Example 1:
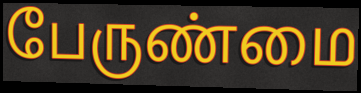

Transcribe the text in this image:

பேருண்மை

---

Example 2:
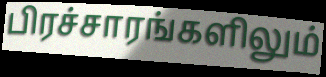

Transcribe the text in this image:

பிரச்சாரங்களிலும்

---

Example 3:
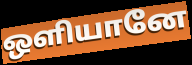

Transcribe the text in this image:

ஒளியானே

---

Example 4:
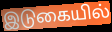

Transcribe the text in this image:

இடுகையில்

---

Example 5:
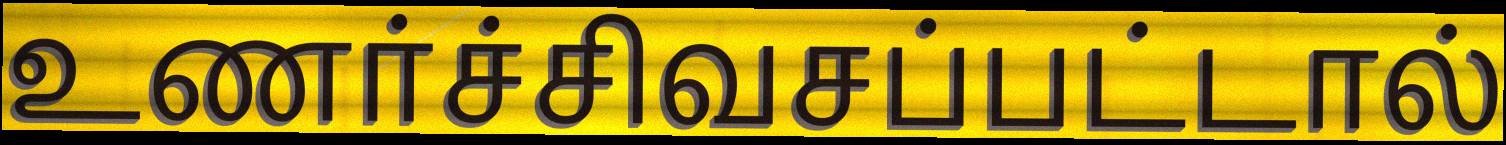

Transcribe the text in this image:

உணர்ச்சிவசப்பட்டால்